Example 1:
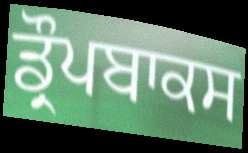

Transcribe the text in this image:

ਡ੍ਰੌਪਬਾਕਸ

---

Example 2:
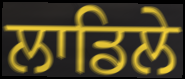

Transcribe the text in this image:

ਲਾਡਿਲੇ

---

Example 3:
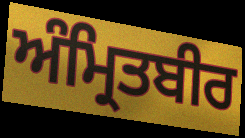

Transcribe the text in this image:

ਅੰਮ੍ਰਿਤਬੀਰ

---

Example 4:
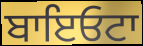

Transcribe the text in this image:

ਬਾਇਓਟਾ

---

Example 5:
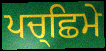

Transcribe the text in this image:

ਪਚ੍ਛਿਮੇ